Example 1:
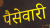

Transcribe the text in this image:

पैसेवारी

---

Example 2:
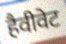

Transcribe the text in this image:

हैवीवेट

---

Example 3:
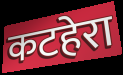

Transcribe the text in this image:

कटहेरा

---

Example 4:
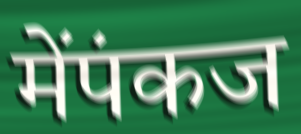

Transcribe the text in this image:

मेंपंकज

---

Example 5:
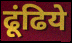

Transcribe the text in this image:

ढूंढिये